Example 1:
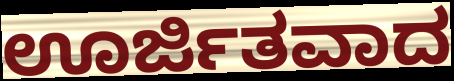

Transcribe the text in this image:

ಊರ್ಜಿತವಾದ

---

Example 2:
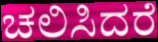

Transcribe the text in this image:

ಚಲಿಸಿದರೆ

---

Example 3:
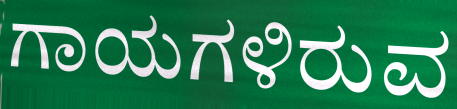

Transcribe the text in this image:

ಗಾಯಗಳಿರುವ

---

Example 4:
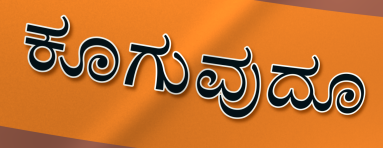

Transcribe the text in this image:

ಕೂಗುವುದೂ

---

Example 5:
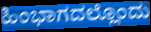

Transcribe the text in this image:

ಹಿಂಭಾಗದಲ್ಲೊಂದು